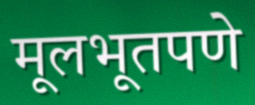
मूलभूतपणे